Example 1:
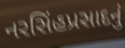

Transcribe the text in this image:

નરસિંહપ્રસાદનું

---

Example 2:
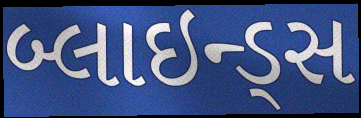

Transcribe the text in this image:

બ્લાઇન્ડ્સ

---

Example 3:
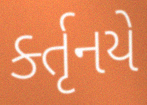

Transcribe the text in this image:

ર્ક્તૃનયે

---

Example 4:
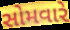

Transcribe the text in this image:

સોમવારે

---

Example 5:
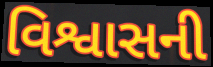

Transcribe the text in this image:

વિશ્વાસની